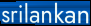
srilankan